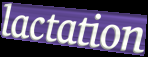
lactation